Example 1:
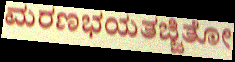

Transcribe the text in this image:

ಮರಣಭಯತಜ್ಜಿತೋ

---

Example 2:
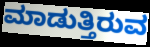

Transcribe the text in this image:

ಮಾಡುತ್ತಿರುವ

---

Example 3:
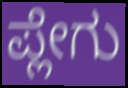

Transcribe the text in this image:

ಪ್ಲೇಗು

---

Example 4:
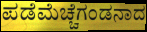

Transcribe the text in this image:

ಪಡೆಮೆಚ್ಚೆಗಂಡನಾದ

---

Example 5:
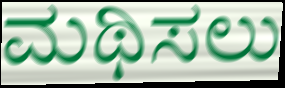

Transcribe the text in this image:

ಮಥಿಸಲು